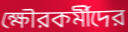
ক্ষৌরকর্মীদের